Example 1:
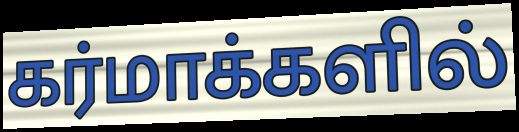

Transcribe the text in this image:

கர்மாக்களில்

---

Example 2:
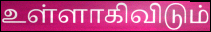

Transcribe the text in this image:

உள்ளாகிவிடும்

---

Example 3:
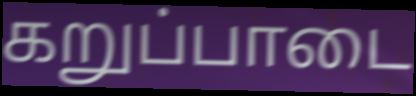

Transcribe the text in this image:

கறுப்பாடை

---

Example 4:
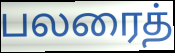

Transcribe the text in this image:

பலரைத்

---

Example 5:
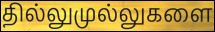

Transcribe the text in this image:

தில்லுமுல்லுகளை